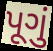
પૂગું